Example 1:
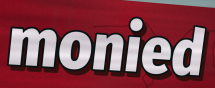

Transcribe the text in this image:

monied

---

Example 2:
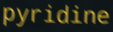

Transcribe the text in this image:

pyridine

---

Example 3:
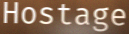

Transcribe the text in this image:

Hostage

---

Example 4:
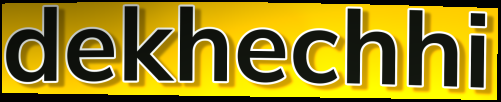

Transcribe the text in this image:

dekhechhi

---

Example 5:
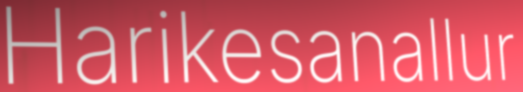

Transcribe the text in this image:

Harikesanallur